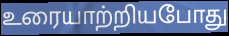
உரையாற்றியபோது